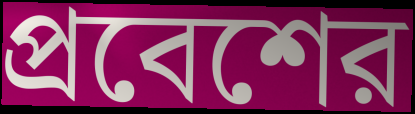
প্রবেশের